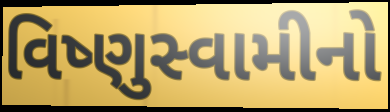
વિષ્ણુસ્વામીનો